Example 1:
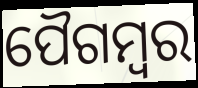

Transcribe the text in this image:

ପୈଗମ୍ବର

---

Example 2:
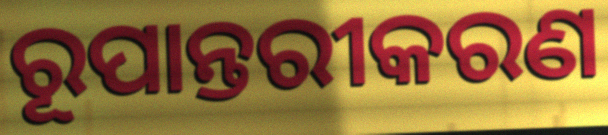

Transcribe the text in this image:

ରୂପାନ୍ତରୀକରଣ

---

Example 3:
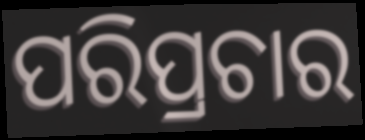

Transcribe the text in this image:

ପରିପ୍ରଚାର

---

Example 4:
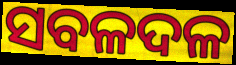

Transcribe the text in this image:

ସବଳଦଳ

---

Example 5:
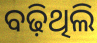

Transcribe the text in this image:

ବଢ଼ିଥିଲି